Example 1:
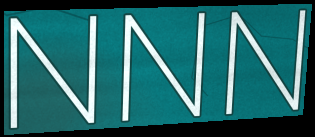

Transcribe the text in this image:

NNN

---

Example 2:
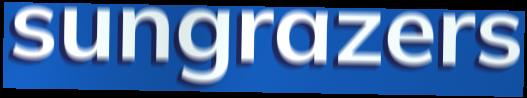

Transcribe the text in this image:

sungrazers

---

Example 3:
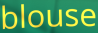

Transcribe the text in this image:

blouse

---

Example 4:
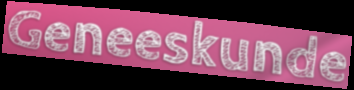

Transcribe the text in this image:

Geneeskunde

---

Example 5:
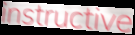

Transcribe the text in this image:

instructive